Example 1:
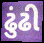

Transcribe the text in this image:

ઢુંઢી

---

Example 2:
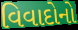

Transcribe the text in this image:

વિવાદોનો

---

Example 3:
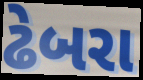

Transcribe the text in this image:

ઢેબરા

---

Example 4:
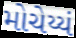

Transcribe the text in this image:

મોચેય્યં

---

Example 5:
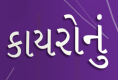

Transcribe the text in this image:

કાયરોનું